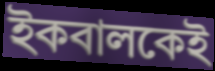
ইকবালকেই